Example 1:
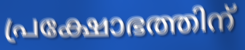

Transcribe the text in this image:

പ്രക്ഷോഭത്തിന്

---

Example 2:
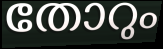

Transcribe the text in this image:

തോറും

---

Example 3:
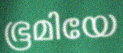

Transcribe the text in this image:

ഭൂമിയേ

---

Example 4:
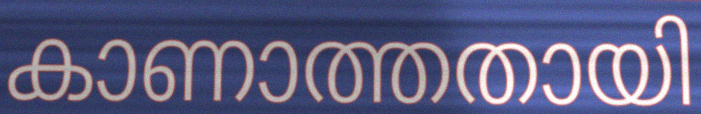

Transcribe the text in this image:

കാണാത്തതായി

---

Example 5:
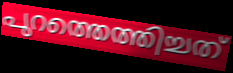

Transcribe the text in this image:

പുറത്തെത്തിച്ചത്